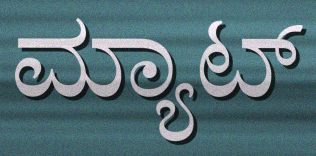
ಮ್ಯಾಟ್